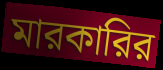
মারকারির